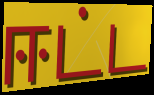
ஈட்ட